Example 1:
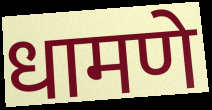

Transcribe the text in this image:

धामणे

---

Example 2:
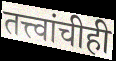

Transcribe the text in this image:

तत्त्वांचीही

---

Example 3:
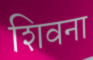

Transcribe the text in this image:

शिवना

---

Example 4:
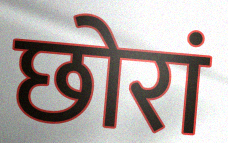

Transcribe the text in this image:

छोरां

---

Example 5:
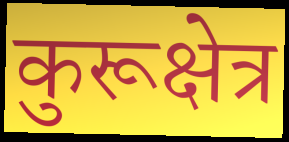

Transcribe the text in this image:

कुरूक्षेत्र